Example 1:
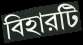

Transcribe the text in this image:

বিহারটি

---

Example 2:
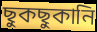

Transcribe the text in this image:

ছুকছুকানি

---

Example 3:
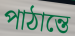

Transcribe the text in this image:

পাঠান্তে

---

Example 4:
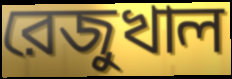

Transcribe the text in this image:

রেজুখাল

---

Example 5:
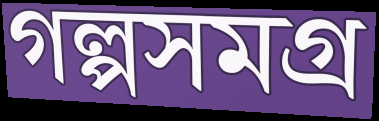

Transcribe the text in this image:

গল্পসমগ্র